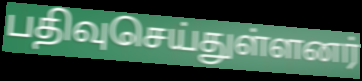
பதிவுசெய்துள்ளனர்